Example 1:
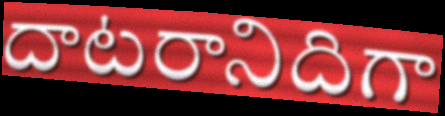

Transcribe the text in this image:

దాటరానిదిగా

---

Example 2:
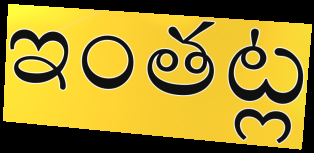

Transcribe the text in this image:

ఇంతట్ల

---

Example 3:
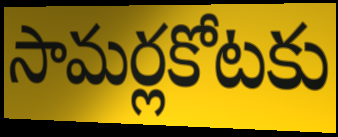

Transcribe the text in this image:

సామర్లకోటకు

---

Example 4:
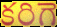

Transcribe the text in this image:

కరిగె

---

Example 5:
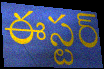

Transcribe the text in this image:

ఈస్టర్